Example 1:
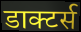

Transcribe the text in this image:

डाक्टर्स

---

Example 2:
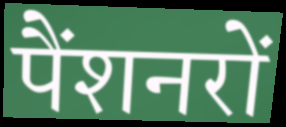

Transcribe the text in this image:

पैंशनरों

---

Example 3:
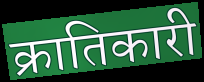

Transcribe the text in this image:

क्रातिकारी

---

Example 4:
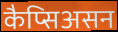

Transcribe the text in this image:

कैप्सिअसन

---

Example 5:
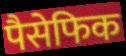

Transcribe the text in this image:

पैसेफिक